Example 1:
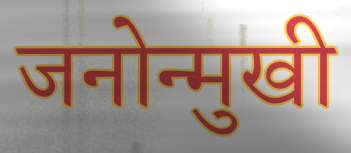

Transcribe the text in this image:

जनोन्मुखी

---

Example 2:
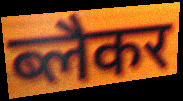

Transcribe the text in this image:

ब्लैकर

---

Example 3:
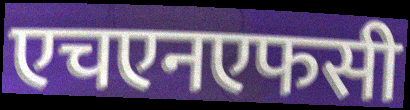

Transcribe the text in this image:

एचएनएफसी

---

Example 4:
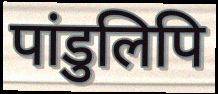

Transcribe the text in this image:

पांडुलिपि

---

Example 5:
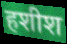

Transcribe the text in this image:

हशीश